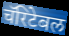
चॅरिटेबल